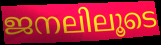
ജനലിലൂടെ